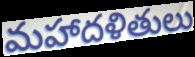
మహాదళితులు